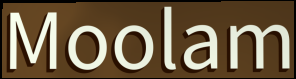
Moolam